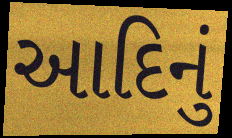
આદિનું